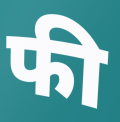
फी